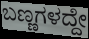
ಬಣ್ಣಗಳದ್ದೇ